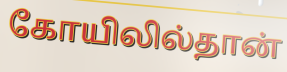
கோயிலில்தான்